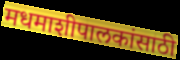
मधमाशीपालकांसाठी